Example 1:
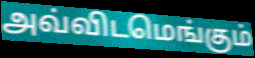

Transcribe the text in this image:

அவ்விடமெங்கும்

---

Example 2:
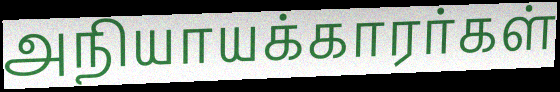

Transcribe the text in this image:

அநியாயக்காரர்கள்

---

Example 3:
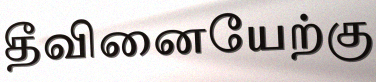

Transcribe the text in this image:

தீவினையேற்கு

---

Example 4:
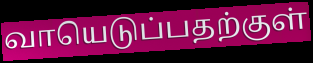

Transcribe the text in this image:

வாயெடுப்பதற்குள்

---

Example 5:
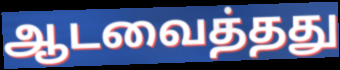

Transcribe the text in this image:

ஆடவைத்தது